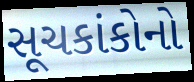
સૂચકાંકોનો